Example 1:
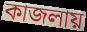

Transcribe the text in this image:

কাজলায়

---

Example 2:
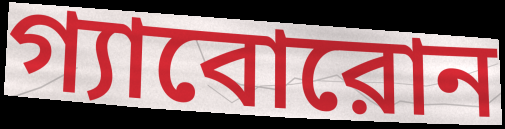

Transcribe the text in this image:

গ্যাবোরোন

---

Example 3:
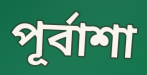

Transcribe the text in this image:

পূর্বাশা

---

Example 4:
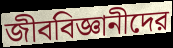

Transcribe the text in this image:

জীববিজ্ঞানীদের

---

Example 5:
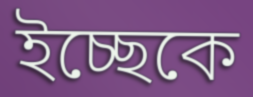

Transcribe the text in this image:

ইচ্ছেকে